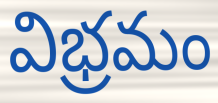
విభ్రమం